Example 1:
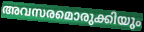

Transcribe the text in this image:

അവസരമൊരുക്കിയും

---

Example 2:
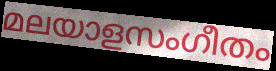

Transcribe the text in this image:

മലയാളസംഗീതം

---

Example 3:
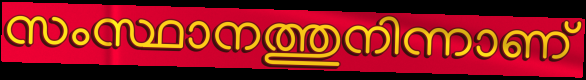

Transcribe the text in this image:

സംസ്ഥാനത്തുനിന്നാണ്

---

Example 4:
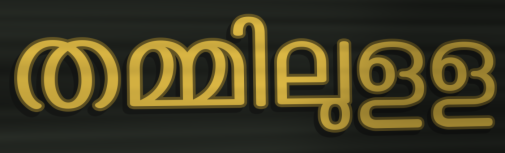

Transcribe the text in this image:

തമ്മിലുളള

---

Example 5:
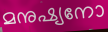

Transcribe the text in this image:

മനുഷ്യനോ